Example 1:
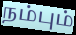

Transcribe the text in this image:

நம்பும்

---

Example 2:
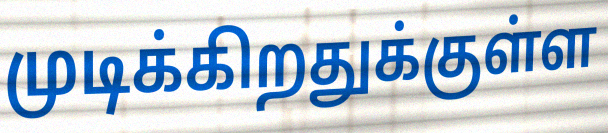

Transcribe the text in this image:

முடிக்கிறதுக்குள்ள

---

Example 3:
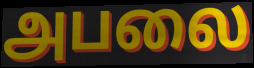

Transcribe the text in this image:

அபலை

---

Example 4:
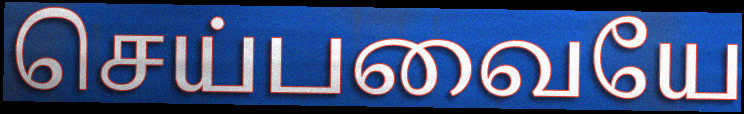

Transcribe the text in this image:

செய்பவையே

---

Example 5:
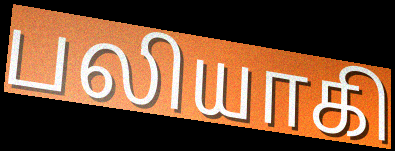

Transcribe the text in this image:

பலியாகி